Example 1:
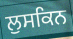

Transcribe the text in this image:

ਲੁਸਕਿਨ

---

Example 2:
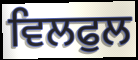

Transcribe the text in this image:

ਵਿਲਫੁਲ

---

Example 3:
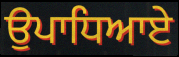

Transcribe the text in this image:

ਉਪਾਧਿਆਏ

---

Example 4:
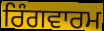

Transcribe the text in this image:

ਰਿੰਗਵਾਰਮ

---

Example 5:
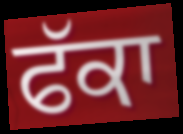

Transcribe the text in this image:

ਫੱਕਾ